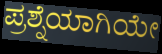
ಪ್ರಶ್ನೆಯಾಗಿಯೇ